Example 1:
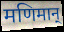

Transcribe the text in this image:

मणिमान्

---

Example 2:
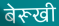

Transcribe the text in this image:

बेरूखी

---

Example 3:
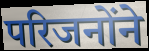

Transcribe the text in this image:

परिजनोंने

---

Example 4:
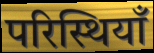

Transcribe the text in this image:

परिस्थियाँ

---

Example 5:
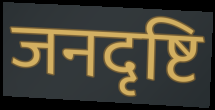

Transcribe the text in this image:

जनदृष्टि